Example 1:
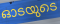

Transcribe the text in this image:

ഓടയുടെ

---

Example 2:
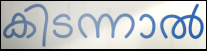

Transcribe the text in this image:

കിടന്നാൽ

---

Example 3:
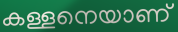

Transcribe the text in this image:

കള്ളനെയാണ്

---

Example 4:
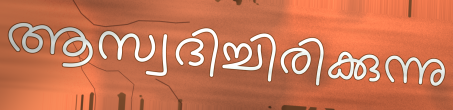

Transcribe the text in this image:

ആസ്വദിച്ചിരിക്കുന്നു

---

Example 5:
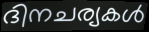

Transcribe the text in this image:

ദിനചര്യകൾ